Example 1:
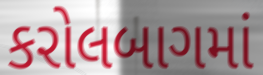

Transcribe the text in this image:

કરોલબાગમાં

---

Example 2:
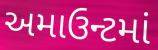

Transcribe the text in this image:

અમાઉન્ટમાં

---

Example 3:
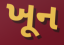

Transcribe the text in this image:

ખૂન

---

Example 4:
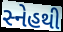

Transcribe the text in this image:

સ્નેહથી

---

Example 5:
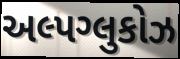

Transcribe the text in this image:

અલ્પગ્લુકોઝ